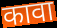
कावा